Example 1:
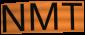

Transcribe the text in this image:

NMT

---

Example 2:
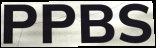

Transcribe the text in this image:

PPBS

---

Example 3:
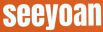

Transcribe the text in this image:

seeyoan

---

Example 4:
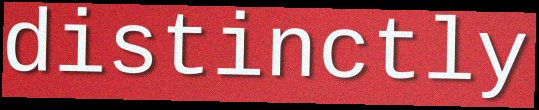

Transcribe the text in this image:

distinctly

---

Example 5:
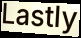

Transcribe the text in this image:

Lastly